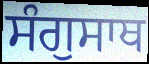
ਸੰਗੁਸਾਥ